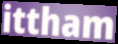
ittham